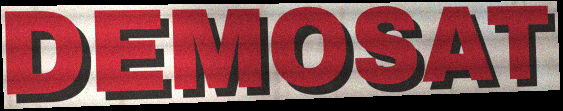
DEMOSAT